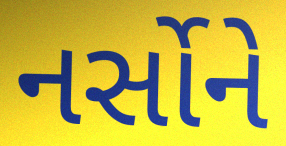
નર્સોને